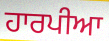
ਹਾਰਪੀਆ